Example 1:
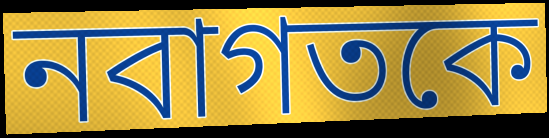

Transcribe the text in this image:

নবাগতকে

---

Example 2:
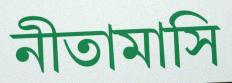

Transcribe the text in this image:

নীতামাসি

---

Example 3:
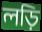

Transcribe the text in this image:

লড়ি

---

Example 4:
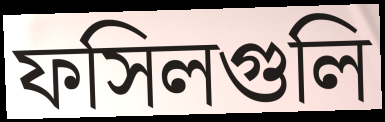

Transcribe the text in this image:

ফসিলগুলি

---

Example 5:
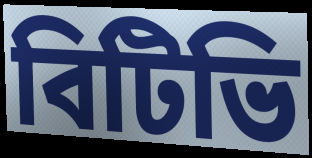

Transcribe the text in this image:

বিটিভি